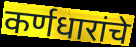
कर्णधारांचे